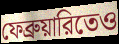
ফেব্রুয়ারিতেও